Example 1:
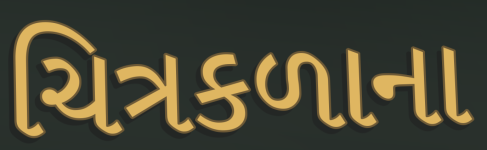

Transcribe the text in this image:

ચિત્રકળાના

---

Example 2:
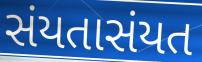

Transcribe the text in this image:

સંયતાસંયત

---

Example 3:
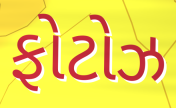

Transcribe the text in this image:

ફોટોઝ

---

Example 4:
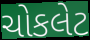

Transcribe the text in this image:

ચોકલેટ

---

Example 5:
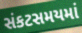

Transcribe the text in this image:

સંકટસમયમાં